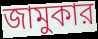
জামুকার